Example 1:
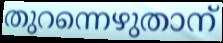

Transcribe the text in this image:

തുറന്നെഴുതാന്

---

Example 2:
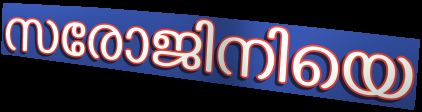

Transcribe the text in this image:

സരോജിനിയെ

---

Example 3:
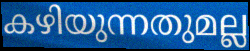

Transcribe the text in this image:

കഴിയുന്നതുമല്ല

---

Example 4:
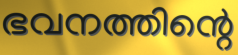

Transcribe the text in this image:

ഭവനത്തിന്റെ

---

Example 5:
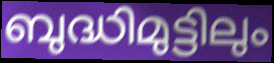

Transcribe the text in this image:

ബുദ്ധിമുട്ടിലും